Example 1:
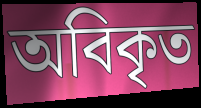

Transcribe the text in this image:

অবিকৃত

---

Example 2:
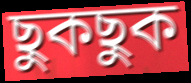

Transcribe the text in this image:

ছুকছুক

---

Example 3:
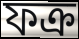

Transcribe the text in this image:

ফক্র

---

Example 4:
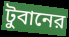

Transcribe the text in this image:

টুবানের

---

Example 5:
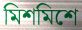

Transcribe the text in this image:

মিশমিশে